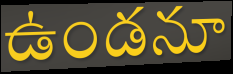
ఉండనూ